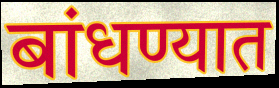
बांधण्‍यात